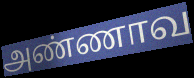
அண்ணாவ